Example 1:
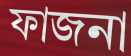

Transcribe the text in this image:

ফাজনা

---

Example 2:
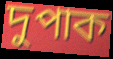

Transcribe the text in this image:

দুপাক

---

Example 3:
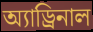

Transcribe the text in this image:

অ্যাড্রিনাল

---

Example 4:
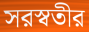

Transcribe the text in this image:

সরস্বতীর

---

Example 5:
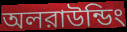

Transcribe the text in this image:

অলরাউন্ডিং